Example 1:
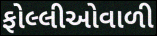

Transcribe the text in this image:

ફોલ્લીઓવાળી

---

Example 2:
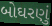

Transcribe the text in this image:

બોઘરણું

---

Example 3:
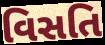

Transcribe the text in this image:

વિસતિ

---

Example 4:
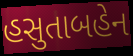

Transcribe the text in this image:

હસુતાબહેન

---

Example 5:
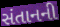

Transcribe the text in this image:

સંતાનની